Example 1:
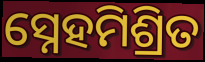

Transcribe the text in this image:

ସ୍ନେହମିଶ୍ରିତ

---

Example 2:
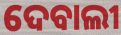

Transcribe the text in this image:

ଦେବାଲୀ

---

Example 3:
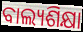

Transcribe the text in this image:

ବାଲ୍ୟଶିକ୍ଷା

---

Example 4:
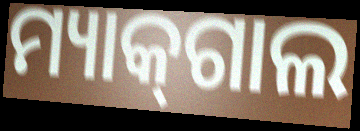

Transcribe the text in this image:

ମ୍ୟାକ୍‌ଗାଲ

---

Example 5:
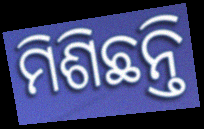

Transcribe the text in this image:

ମିଶିଛନ୍ତି